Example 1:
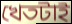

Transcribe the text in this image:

খেতটাই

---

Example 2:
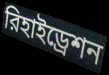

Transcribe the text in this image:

রিহাইড্রেশন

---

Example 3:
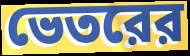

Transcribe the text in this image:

ভেতরের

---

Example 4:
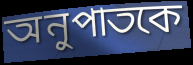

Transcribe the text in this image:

অনুপাতকে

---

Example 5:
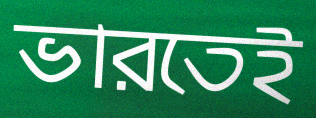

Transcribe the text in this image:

ভারতেই